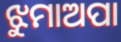
ଝୁମାଅପା